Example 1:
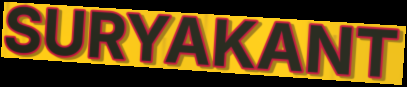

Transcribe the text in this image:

SURYAKANT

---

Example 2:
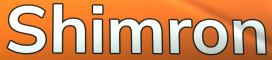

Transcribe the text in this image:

Shimron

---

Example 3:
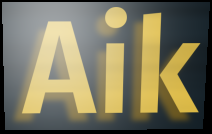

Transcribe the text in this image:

Aik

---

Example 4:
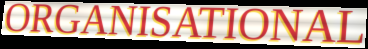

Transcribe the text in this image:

ORGANISATIONAL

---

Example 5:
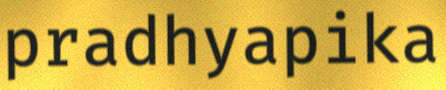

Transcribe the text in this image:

pradhyapika